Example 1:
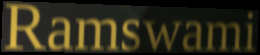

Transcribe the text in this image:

Ramswami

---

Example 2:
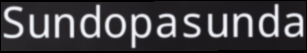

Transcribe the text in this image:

Sundopasunda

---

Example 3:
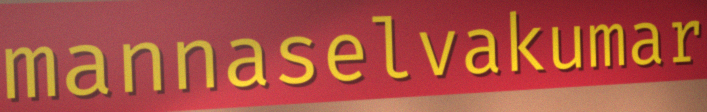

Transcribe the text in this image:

mannaselvakumar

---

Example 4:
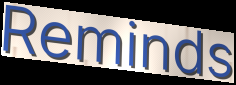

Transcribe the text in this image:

Reminds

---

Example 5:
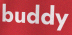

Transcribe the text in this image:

buddy